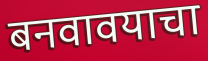
बनवावयाचा